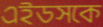
এইডসকে